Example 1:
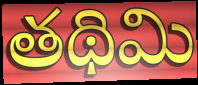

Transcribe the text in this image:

తథిమి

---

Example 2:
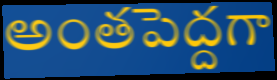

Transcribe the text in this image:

అంతపెద్దగా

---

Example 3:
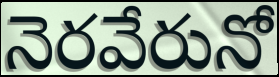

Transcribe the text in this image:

నెరవేరునో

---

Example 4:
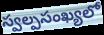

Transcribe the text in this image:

స్వల్పసంఖ్యలో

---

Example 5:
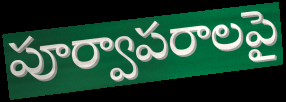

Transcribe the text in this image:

పూర్వాపరాలపై